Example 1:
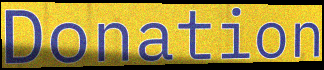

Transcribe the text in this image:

Donation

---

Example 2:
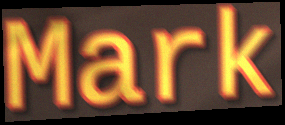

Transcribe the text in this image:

Mark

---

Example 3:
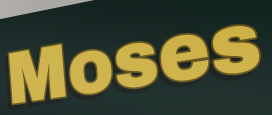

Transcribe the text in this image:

Moses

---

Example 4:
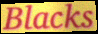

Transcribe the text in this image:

Blacks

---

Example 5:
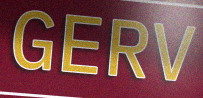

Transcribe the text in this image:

GERV